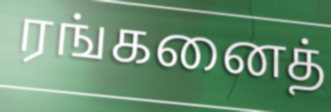
ரங்கனைத்